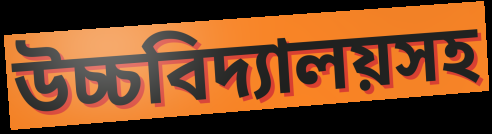
উচ্চবিদ্যালয়সহ